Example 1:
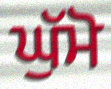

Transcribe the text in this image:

ਘੁੱਮੋ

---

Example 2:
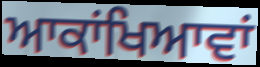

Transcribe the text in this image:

ਆਕਾਂਖਿਆਵਾਂ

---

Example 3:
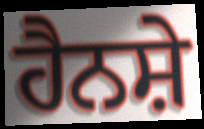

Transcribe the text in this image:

ਹੈਨਸ਼ੇ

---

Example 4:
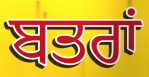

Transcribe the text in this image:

ਬਤਰਾਂ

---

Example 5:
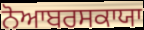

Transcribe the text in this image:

ਨੋਆਬਰਸਕਾਯਾ